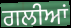
ਗਲੀਆਂ